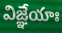
విజ్ఞేయాః